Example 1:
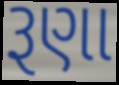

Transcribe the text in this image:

રૂણા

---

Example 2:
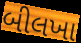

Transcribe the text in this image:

બીલખા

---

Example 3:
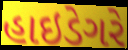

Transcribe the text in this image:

હાઇડેગરે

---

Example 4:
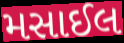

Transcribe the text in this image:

મસાઈલ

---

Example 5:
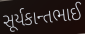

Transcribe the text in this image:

સૂર્યકાન્તભાઈ